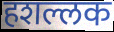
हशल्लक